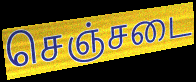
செஞ்சடை